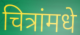
चित्रांमधे